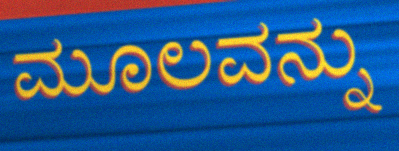
ಮೂಲವನ್ನು